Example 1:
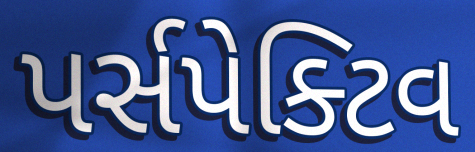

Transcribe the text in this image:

પર્સપેક્ટિવ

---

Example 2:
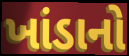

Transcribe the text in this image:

ખાંડાનો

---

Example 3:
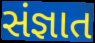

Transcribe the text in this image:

સંજ્ઞાત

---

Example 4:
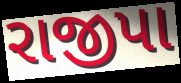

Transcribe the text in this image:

રાજીપા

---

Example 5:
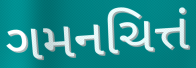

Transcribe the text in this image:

ગમનચિત્તં